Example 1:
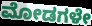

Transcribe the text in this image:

ಮೋಡಗಳೇ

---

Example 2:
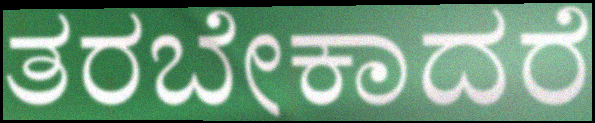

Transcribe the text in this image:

ತರಬೇಕಾದರೆ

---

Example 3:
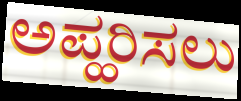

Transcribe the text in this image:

ಅಪ್ಹರಿಸಲು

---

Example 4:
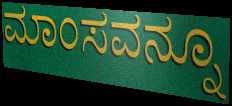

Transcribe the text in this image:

ಮಾಂಸವನ್ನೂ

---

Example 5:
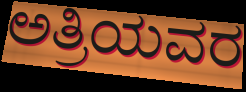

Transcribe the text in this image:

ಅತ್ರಿಯವರ